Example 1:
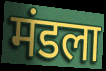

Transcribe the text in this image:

मंडला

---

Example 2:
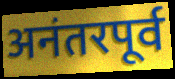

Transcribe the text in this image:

अनंतरपूर्व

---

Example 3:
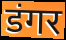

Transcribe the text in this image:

डंगर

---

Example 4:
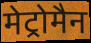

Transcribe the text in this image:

मेट्रोमैन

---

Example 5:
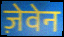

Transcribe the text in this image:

ज़ेवेन